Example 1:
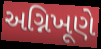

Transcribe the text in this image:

અગ્નિખૂણે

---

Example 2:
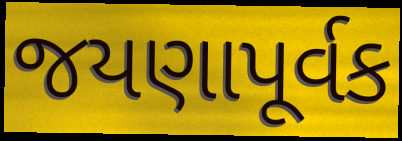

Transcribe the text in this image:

જયણાપૂર્વક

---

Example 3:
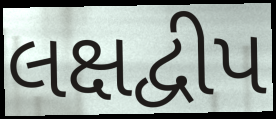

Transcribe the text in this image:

લક્ષદ્વીપ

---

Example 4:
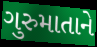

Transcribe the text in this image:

ગુરુમાતાને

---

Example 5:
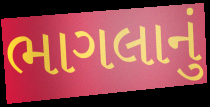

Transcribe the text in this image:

ભાગલાનું